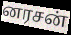
னரசன்